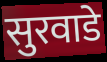
सुरवाडे